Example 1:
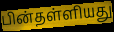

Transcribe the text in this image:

பின்தள்ளியது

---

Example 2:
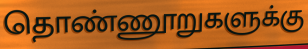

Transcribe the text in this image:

தொண்ணூறுகளுக்கு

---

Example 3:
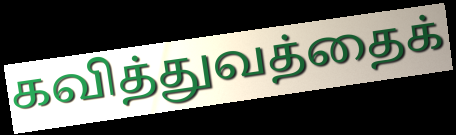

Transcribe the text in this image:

கவித்துவத்தைக்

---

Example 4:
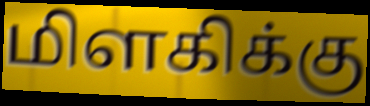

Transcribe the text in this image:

மிளகிக்கு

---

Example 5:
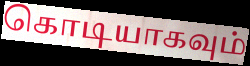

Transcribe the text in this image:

கொடியாகவும்